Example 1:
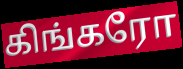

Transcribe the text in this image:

கிங்கரோ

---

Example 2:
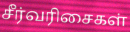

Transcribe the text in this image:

சீர்வரிசைகள்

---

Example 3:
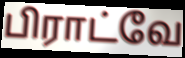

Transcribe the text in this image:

பிராட்வே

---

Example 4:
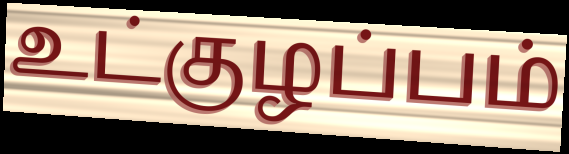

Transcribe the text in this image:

உட்குழப்பம்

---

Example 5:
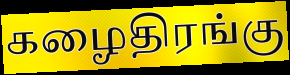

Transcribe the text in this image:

கழைதிரங்கு